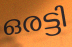
ഒരട്ടി